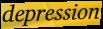
depression